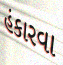
હંકારવા